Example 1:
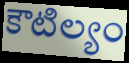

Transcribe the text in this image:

కౌటిల్యం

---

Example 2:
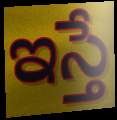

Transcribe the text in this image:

ఇస్తే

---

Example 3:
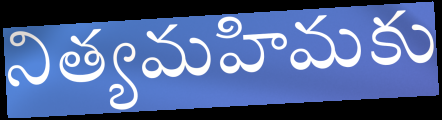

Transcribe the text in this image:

నిత్యమహిమకు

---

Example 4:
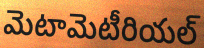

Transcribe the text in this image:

మెటామెటీరియల్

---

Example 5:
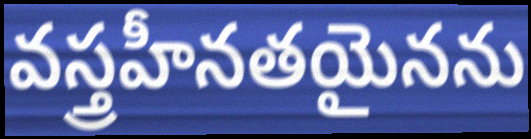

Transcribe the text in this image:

వస్త్రహీనతయైనను